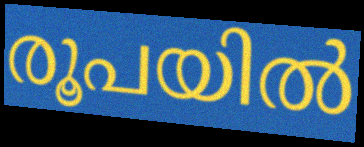
രൂപയിൽ